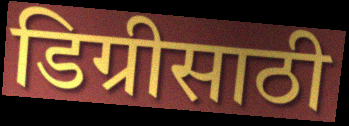
डिग्रीसाठी